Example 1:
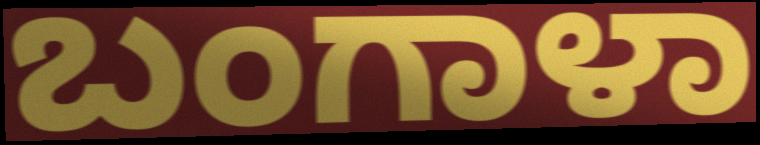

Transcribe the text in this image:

ಬಂಗಾಳಾ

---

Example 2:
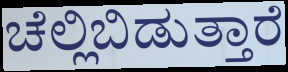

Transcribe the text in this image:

ಚೆಲ್ಲಿಬಿಡುತ್ತಾರೆ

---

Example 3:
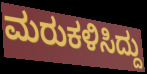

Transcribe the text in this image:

ಮರುಕಳಿಸಿದ್ದು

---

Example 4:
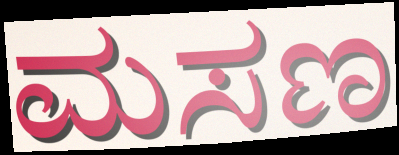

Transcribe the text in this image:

ಮಸಣ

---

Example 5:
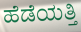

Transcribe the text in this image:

ಹೆಡೆಯತ್ತಿ